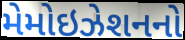
મેમોઇઝેશનનો